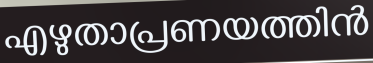
എഴുതാപ്രണയത്തിൻ